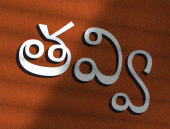
తవ్వి